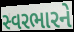
સ્વરભારને